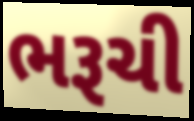
ભરૂચી